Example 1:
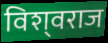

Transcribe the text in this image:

विश्वराज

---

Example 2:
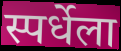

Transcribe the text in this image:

स्पर्धेला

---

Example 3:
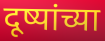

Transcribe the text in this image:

दूष्यांच्या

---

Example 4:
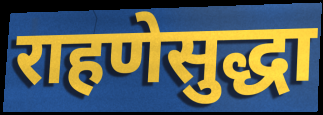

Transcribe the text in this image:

राहणेसुद्धा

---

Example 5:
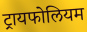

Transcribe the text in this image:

ट्रायफोलियम